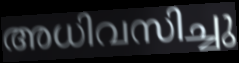
അധിവസിച്ചു